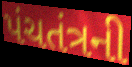
પંચતંત્રની